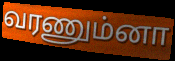
வரணும்னா